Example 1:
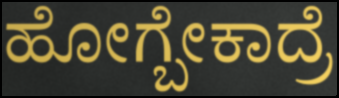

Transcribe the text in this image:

ಹೋಗ್ಬೇಕಾದ್ರೆ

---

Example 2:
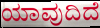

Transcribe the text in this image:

ಯಾವುದಿದೆ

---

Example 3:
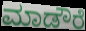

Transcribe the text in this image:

ಮಾಡೌರೆ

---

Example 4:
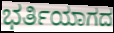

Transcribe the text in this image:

ಭರ್ತಿಯಾಗದ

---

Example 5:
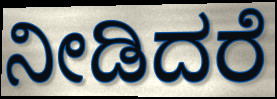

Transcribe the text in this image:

ನೀಡಿದರೆ